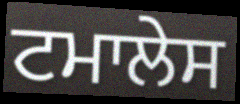
ਟਮਾਲੇਸ